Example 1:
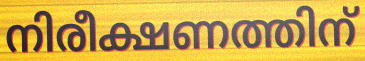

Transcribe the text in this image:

നിരീക്ഷണത്തിന്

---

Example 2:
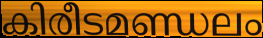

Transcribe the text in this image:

കിരീടമണ്ഡലം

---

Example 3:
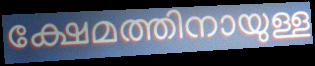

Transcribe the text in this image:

ക്ഷേമത്തിനായുള്ള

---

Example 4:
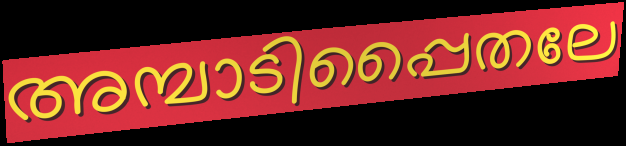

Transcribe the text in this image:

അമ്പാടിപ്പൈതലേ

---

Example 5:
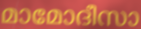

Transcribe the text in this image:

മാമോദീസാ